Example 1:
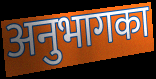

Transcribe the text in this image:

अनुभागका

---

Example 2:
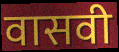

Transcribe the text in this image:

वासवी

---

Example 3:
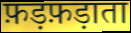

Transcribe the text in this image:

फ़ड़फ़ड़ाता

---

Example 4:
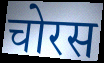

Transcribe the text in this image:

चोरस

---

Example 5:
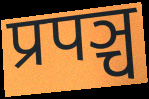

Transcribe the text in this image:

प्रपञ्च